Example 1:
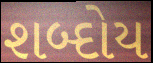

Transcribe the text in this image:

શબ્દોય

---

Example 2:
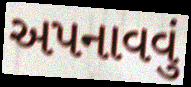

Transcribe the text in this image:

અપનાવવું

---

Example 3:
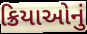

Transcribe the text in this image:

ક્રિયાઓનું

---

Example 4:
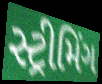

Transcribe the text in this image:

સ્ટ્રીમિંગ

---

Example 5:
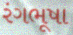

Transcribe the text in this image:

રંગભૂષા